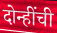
दोन्हींची